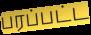
பரப்பட்ட